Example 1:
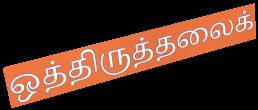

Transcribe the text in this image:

ஒத்திருத்தலைக்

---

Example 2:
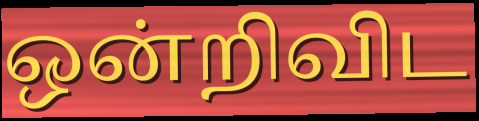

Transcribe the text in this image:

ஒன்றிவிட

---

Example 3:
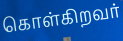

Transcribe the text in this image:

கொள்கிறவர்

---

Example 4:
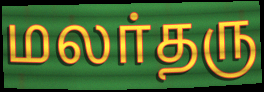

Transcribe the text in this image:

மலர்தரு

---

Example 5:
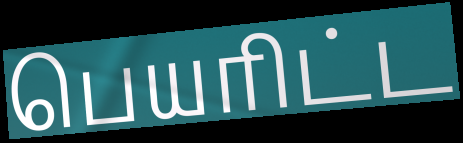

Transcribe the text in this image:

பெயரிட்ட